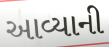
આવ્યાની